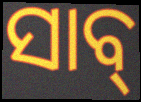
ସାବ୍